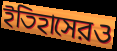
ইতিহাসেরও